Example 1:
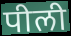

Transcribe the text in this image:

पीली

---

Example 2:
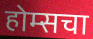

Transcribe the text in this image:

होम्सचा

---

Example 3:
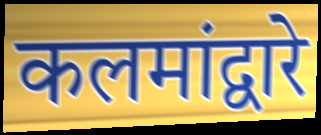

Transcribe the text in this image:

कलमांद्वारे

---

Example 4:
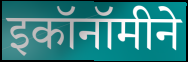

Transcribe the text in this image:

इकॉनॉमीने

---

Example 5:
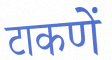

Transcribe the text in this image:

टाकणें